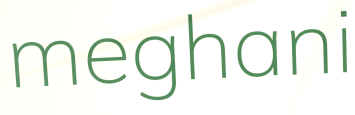
meghani